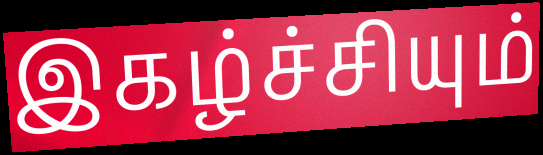
இகழ்ச்சியும்